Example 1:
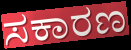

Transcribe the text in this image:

ಸಕಾರಣ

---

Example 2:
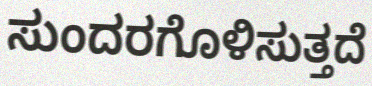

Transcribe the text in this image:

ಸುಂದರಗೊಳಿಸುತ್ತದೆ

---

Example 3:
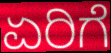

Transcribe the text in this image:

ಏರಿಗೆ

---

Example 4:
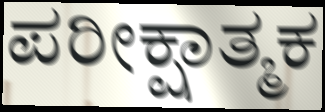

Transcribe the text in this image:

ಪರೀಕ್ಷಾತ್ಮಕ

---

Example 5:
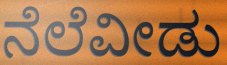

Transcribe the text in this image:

ನೆಲೆವೀಡು